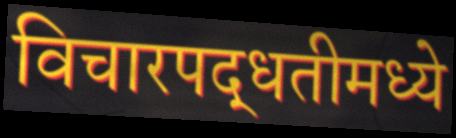
विचारपद्धतीमध्ये